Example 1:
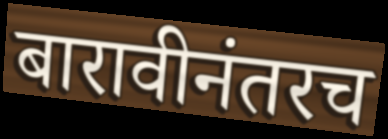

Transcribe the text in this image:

बारावीनंतरच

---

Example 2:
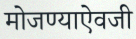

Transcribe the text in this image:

मोजण्याऐवजी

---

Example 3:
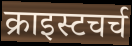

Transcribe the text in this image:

क्राइस्टचर्च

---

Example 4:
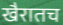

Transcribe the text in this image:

खैरातच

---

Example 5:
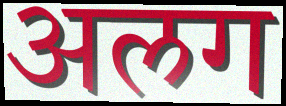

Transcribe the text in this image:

अलग